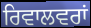
ਰਿਵਾਲਵਰਾਂ